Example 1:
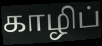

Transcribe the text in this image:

காழிப்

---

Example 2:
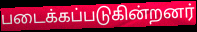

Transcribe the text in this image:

படைக்கப்படுகின்றனர்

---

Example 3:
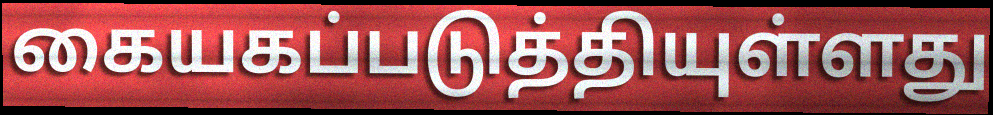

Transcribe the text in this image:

கையகப்படுத்தியுள்ளது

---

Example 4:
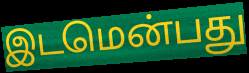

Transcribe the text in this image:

இடமென்பது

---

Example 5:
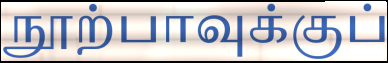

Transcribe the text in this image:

நூற்பாவுக்குப்